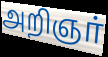
அறிஞர்